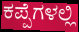
ಕಪ್ಪೆಗಳಲ್ಲಿ